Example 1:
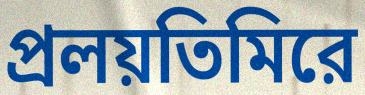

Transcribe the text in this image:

প্রলয়তিমিরে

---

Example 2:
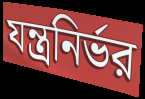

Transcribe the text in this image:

যন্ত্রনির্ভর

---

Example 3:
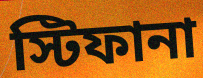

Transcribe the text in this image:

স্টিফানা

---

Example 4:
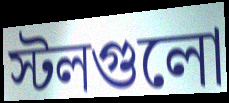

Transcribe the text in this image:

স্টলগুলো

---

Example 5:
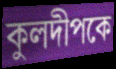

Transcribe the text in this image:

কুলদীপকে